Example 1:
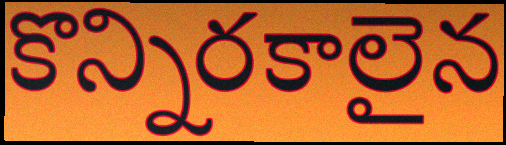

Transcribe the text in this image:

కొన్నిరకాలైన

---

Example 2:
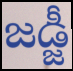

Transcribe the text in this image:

జడ్జీ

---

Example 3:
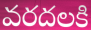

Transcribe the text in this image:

వరదలకి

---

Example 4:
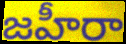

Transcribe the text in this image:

జహీరా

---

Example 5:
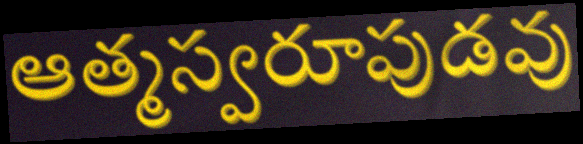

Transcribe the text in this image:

ఆత్మస్వరూపుడవు